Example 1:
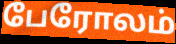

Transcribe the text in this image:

பேரோலம்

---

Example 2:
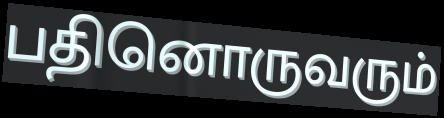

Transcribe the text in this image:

பதினொருவரும்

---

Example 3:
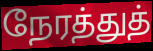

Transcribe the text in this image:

நேரத்துத்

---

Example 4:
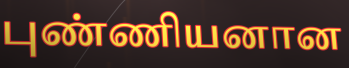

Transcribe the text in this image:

புண்ணியனான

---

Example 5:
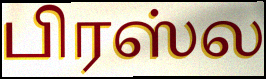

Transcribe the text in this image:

பிரஸ்ல